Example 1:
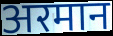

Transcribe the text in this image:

अरमान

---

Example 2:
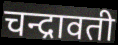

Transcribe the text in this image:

चन्द्रावती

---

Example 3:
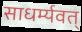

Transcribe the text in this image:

साधर्म्यवत्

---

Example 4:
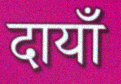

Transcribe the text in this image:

दायाँ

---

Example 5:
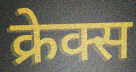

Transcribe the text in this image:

क्रेक्स